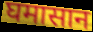
घमासान